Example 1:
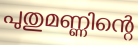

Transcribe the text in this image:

പുതുമണ്ണിന്റെ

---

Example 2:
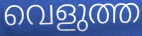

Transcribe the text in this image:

വെളുത്ത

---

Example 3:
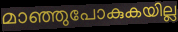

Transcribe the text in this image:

മാഞ്ഞുപോകുകയില്ല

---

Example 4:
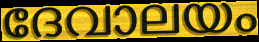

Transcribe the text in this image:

ദേവാലയം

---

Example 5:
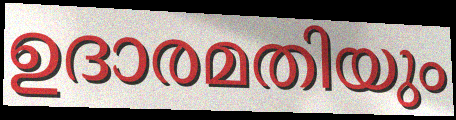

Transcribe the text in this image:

ഉദാരമതിയും